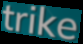
trike